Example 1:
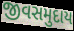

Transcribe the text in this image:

જીવસમુદાય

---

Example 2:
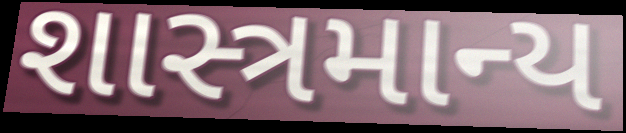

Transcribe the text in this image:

શાસ્ત્રમાન્ય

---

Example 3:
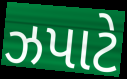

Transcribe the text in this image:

ઝપાટે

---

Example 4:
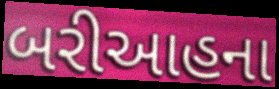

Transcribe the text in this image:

બરીઆહના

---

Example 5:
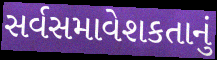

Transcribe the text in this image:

સર્વસમાવેશકતાનું